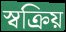
স্বক্রিয়